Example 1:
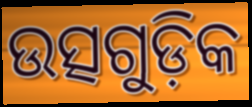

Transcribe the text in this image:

ଉତ୍ସଗୁଡ଼ିକ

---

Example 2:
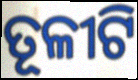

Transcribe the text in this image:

ତୂଳୀଟି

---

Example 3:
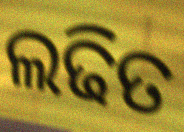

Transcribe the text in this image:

ଲଢିତ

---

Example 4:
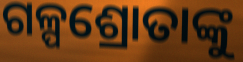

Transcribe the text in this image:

ଗଳ୍ପଶ୍ରୋତାଙ୍କୁ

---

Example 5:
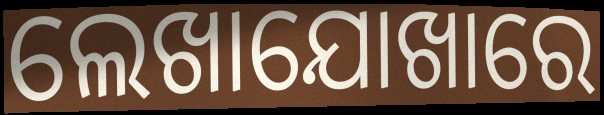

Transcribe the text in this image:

ଲେଖାଯୋଖାରେ